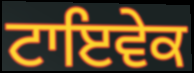
ਟਾਇਵੇਕ